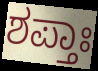
ಶಪ್ತಾಃ